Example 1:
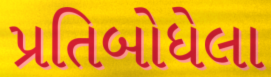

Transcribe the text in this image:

પ્રતિબોધેલા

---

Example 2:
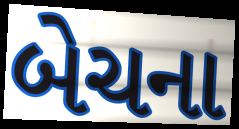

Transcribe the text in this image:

બેચના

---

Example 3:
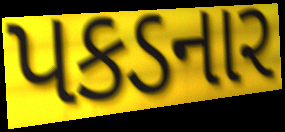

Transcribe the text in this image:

પકડનાર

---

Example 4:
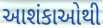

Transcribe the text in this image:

આશંકાઓથી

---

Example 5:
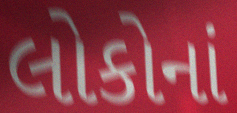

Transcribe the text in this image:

લોકોનાં